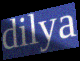
dilya